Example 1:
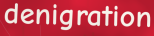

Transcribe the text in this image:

denigration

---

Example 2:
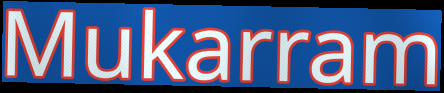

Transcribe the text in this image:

Mukarram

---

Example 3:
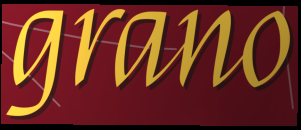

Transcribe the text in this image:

grano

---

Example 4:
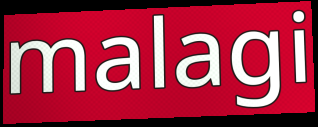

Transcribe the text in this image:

malagi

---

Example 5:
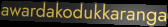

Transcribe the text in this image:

awardakodukkaranga